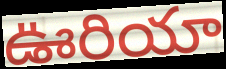
ఊరియా